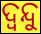
ଦ୍ଵନ୍ଦୁ